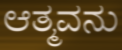
ಆತ್ಮವನು